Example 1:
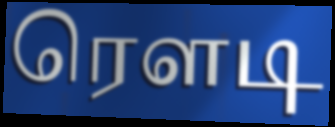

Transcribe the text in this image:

ரௌடி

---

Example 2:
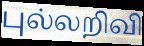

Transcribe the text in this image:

புல்லறிவி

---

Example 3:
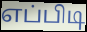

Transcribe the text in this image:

எப்பிடி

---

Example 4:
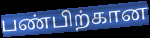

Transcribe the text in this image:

பண்பிற்கான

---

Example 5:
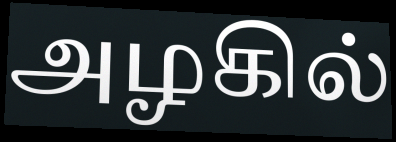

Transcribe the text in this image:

அழகில்